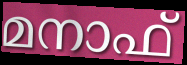
മനാഫ്